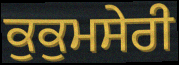
ਕੁਕੁਮਸੇਰੀ